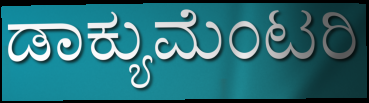
ಡಾಕ್ಯುಮೆಂಟರಿ